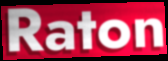
Raton